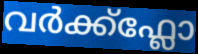
വർക്ക്ഫ്ലോ